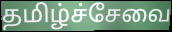
தமிழ்ச்சேவை